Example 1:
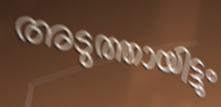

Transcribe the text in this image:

അടുത്തായിട്ടും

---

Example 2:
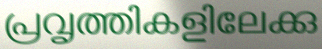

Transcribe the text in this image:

പ്രവൃത്തികളിലേക്കു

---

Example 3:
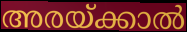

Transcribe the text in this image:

അരയ്ക്കാൽ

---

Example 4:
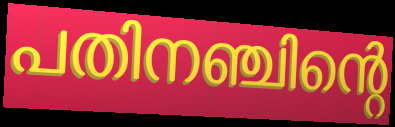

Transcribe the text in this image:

പതിനഞ്ചിന്റെ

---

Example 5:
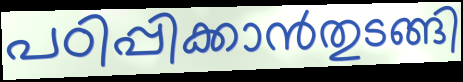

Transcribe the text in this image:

പഠിപ്പിക്കാൻതുടങ്ങി